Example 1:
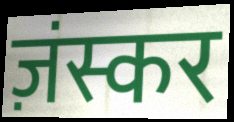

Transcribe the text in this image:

ज़ंस्कर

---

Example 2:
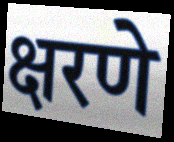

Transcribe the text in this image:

क्षरणे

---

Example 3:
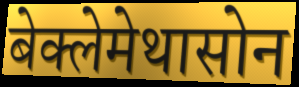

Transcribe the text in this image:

बेक्लेमेथासोन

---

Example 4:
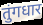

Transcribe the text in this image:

तुंगधार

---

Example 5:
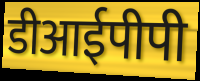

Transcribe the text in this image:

डीआईपीपी